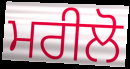
ਮਰੀਲੋ